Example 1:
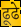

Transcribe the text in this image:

ढूढे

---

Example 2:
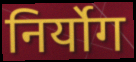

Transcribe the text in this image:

निर्योग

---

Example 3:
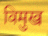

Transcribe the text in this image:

विमुख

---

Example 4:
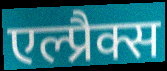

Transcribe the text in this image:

एल्प्रैक्स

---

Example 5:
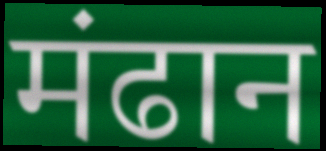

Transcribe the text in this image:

मंढान